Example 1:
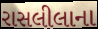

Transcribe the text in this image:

રાસલીલાના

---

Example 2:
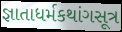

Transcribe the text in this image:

જ્ઞાતાધર્મકથાંગસૂત્ર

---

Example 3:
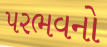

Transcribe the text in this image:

પરભવનો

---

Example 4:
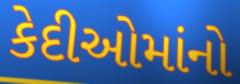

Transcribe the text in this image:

કેદીઓમાંનો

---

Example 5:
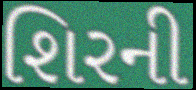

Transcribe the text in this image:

શિરની